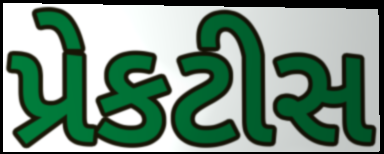
પ્રેકટીસ